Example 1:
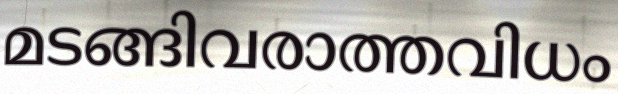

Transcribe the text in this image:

മടങ്ങിവരാത്തവിധം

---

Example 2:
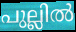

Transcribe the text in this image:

പുല്ലിൽ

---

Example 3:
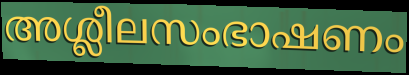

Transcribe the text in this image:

അശ്ലീലസംഭാഷണം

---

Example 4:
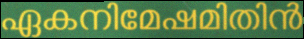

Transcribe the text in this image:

ഏകനിമേഷമിതിൻ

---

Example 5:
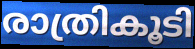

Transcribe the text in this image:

രാത്രികൂടി